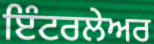
ਇੰਟਰਲੇਅਰ